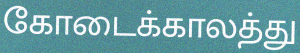
கோடைக்காலத்து